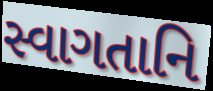
સ્વાગતાનિ